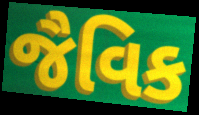
જૈવિક